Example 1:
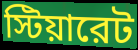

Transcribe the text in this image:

স্টিয়ারেট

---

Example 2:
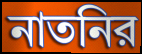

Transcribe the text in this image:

নাতনির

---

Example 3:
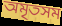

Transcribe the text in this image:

অমৃতসম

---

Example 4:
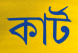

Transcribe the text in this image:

কার্ট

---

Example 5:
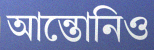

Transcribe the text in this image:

আন্তোনিও